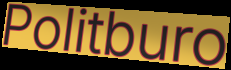
Politburo